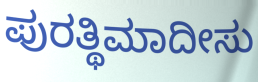
ಪುರತ್ಥಿಮಾದೀಸು